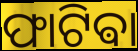
ଫାଟିଵା